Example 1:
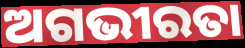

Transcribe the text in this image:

ଅଗଭୀରତା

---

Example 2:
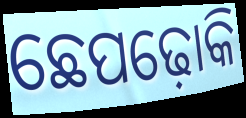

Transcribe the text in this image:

ଛେପଢ଼ୋକି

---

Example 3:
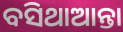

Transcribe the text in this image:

ବସିଥାଆନ୍ତା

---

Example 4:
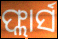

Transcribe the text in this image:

ଫ୍ଲାର୍ସ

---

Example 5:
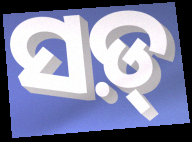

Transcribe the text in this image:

ସଡ଼୍